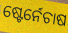
ଷ୍ଟେର୍ନେଚାଷ